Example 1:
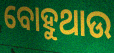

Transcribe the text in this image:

ବୋହୁଥାଉ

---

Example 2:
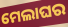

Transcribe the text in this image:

ମେଲାଘର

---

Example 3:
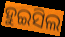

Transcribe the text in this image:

ହୁଇସିଲ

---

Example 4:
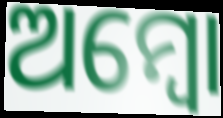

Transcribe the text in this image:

ଅମ୍ୱୋ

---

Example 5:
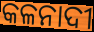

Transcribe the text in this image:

କଳନାଦୀ